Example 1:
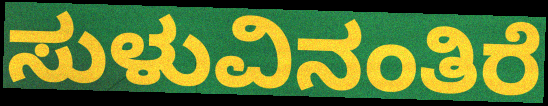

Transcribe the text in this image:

ಸುಳುವಿನಂತಿರೆ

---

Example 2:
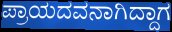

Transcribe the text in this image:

ಪ್ರಾಯದವನಾಗಿದ್ದಾಗ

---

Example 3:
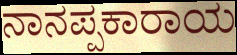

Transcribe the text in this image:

ನಾನಪ್ಪಕಾರಾಯ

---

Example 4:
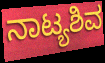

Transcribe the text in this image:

ನಾಟ್ಯಶಿವ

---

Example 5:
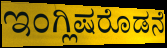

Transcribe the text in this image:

ಇಂಗ್ಲಿಷರೊಡನೆ